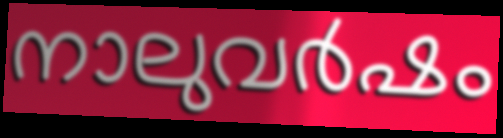
നാലുവർഷം